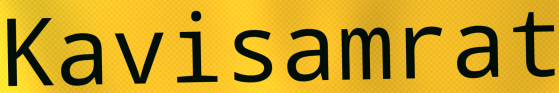
Kavisamrat